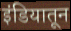
इंडियातून